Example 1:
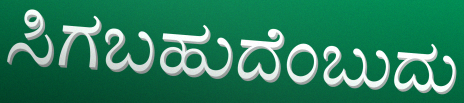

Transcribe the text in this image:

ಸಿಗಬಹುದೆಂಬುದು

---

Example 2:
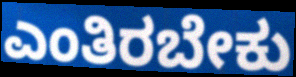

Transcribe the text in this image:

ಎಂತಿರಬೇಕು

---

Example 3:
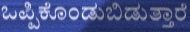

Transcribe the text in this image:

ಒಪ್ಪಿಕೊಂಡುಬಿಡುತ್ತಾರೆ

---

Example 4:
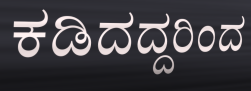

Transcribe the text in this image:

ಕಡಿದದ್ದರಿಂದ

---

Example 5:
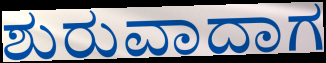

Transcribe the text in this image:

ಶುರುವಾದಾಗ